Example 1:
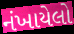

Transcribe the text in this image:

નંખાયેલો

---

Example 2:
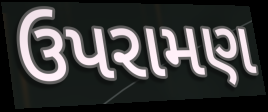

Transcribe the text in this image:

ઉપરામણ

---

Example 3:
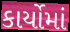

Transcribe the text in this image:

કાર્યોમાં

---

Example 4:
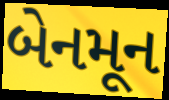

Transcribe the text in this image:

બેનમૂન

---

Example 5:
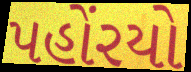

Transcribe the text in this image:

પહોંરયો